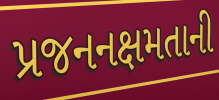
પ્રજનનક્ષમતાની